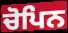
ਚੋਪਿਨ